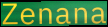
Zenana